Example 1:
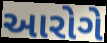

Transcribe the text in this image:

આરોગે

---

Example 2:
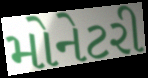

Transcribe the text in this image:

મોનેટરી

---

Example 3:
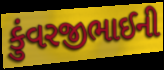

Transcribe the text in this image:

કુંવરજીભાઈની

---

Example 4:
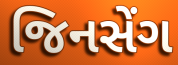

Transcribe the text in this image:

જિનસેંગ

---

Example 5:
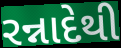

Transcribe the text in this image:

રન્નાદેથી